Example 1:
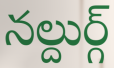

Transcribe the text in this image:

నల్దుర్గ్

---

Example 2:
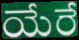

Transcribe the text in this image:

యేరే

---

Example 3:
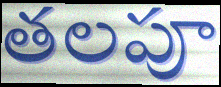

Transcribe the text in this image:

తలపూ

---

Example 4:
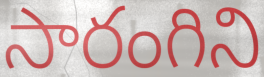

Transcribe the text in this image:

సారంగిని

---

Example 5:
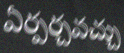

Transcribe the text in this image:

ఏర్పర్చవచ్చు